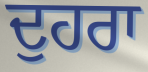
ਦੁਹਰਾ